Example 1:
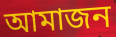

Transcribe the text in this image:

আমাজন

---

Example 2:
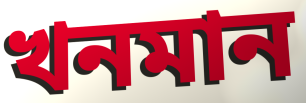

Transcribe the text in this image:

খনমান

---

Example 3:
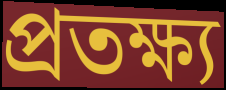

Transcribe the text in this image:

প্ৰতক্ষ্য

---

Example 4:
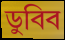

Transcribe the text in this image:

ডুবিব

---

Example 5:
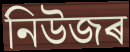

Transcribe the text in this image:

নিউজৰ